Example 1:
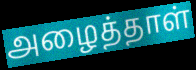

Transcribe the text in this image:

அழைத்தாள்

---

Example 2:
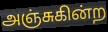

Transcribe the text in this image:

அஞ்சுகின்ற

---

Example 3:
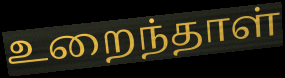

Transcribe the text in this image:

உறைந்தாள்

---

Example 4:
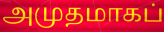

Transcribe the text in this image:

அமுதமாகப்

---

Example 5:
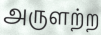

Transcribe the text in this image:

அருளற்ற